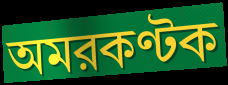
অমরকণ্টক